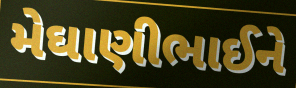
મેઘાણીભાઈને